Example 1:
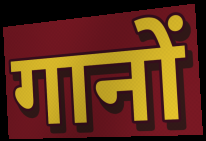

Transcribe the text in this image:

गानों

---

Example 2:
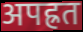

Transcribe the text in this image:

अपह्रत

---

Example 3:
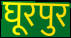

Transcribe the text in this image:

घूरपुर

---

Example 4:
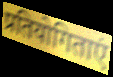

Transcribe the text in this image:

प्रतियोगिताएं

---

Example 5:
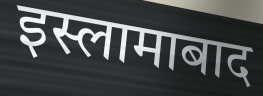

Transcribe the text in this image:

इस्लामाबाद